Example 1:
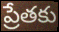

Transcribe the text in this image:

ప్రేతకు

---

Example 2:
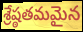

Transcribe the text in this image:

శ్రేష్ఠతమమైన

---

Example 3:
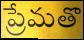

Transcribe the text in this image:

ప్రేమతొ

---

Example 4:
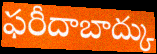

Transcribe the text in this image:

ఫరీదాబాద్కు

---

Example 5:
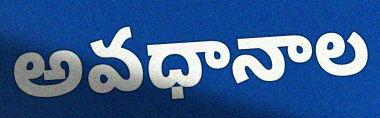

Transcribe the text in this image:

అవధానాల